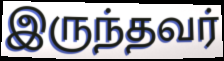
இருந்தவர்